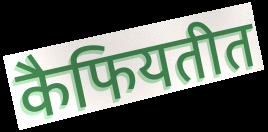
कैफियतीत